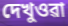
দেখুওৱা